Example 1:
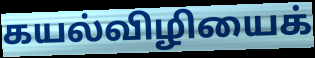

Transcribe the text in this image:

கயல்விழியைக்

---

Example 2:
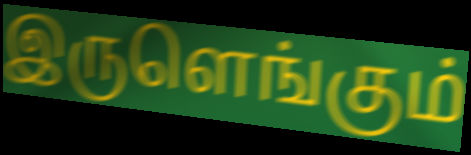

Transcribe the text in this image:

இருளெங்கும்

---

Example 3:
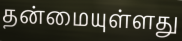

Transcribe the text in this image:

தன்மையுள்ளது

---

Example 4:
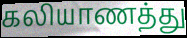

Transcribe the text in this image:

கலியாணத்து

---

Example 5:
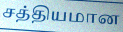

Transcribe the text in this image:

சத்தியமான